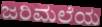
ಜರಿಮಲೆಯ